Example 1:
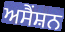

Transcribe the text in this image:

ਅਸੈਂਸ਼ਨ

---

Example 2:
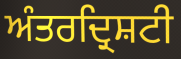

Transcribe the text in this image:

ਅੰਤਰਦ੍ਰਿਸ਼ਟੀ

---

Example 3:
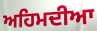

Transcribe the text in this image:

ਅਹਿਮਦੀਆ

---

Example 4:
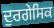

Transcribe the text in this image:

ਦੁਰਗੇਸਿਕ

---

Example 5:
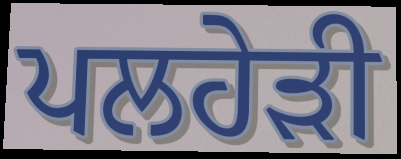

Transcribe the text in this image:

ਪਲਹੇੜੀ